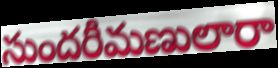
సుందరీమణులారా